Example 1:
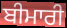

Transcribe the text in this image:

ਬੀਮਾਰੀ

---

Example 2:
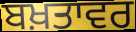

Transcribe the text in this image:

ਬਖ਼ਤਾਵਰ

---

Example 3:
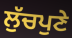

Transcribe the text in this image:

ਲੁੱਚਪੁਣੇ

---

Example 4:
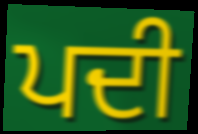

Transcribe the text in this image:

ਪਦੀ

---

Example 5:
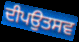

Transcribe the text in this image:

ਦੀਪਉਤਸਵ